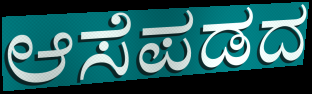
ಆಸೆಪಡದ